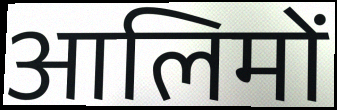
आलिमों